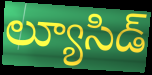
ల్యూసిడ్